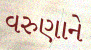
વરુણાને